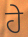
ਹੇ